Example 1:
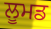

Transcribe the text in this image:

ਲੂਮਡ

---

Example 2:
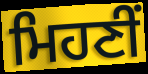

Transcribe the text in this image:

ਮਿਹਣੀਂ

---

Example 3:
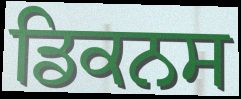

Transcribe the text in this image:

ਡਿਕਨਸ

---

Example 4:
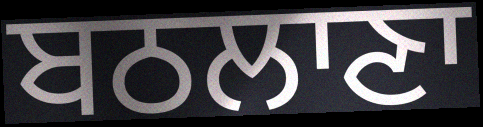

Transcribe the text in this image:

ਬਠਲਾਣਾ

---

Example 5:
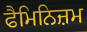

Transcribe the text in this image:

ਫੈਮਿਨਿਜ਼ਮ